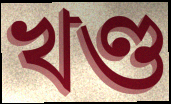
খণ্ড